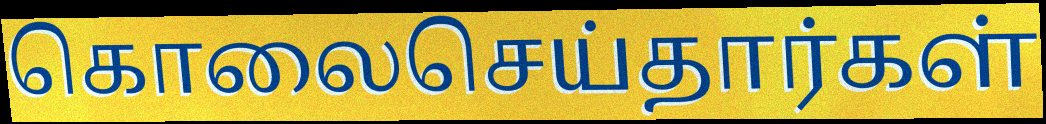
கொலைசெய்தார்கள்